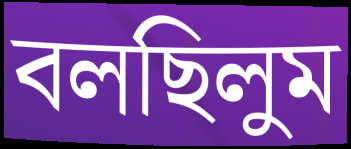
বলছিলুম